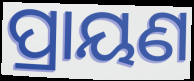
ପ୍ରାୟଣ